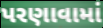
પરણાવામાં